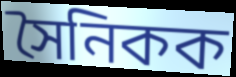
সৈনিকক